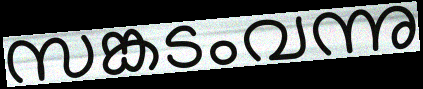
സങ്കടംവന്നു